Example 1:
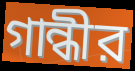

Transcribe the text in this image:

গান্ধীর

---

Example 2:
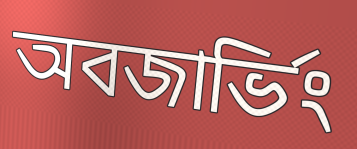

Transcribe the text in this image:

অবজার্ভিং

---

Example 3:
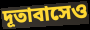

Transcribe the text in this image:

দূতাবাসেও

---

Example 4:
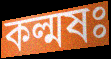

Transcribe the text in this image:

কল্মষঃ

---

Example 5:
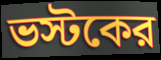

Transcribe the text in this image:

ভস্টকের